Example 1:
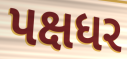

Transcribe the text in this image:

પક્ષધર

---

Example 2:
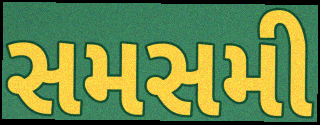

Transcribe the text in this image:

સમસમી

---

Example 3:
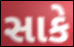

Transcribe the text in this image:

સાકે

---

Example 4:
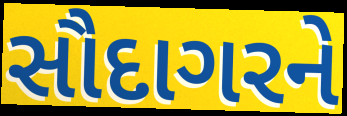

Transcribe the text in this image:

સૌદાગરને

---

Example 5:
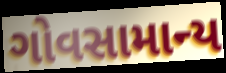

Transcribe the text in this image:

ગોવસામાન્ય